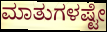
ಮಾತುಗಳಷ್ಟೇ